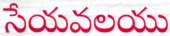
సేయవలయు